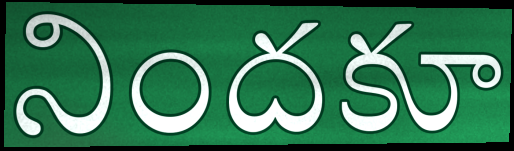
నిందకూ